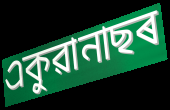
একুৱানাছৰ